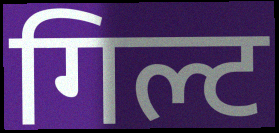
गिल्ट